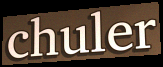
chuler